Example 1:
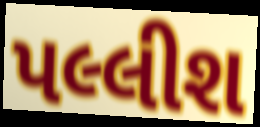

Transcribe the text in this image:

પલ્લીશ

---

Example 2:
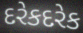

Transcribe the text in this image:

દરેકદરેક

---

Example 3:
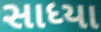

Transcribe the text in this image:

સાધ્યા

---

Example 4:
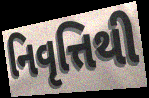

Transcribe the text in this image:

નિવૃત્તિથી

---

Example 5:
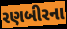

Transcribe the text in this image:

રણબીરના